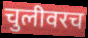
चुलीवरच